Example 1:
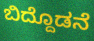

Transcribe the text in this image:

ಬಿದ್ದೊಡನೆ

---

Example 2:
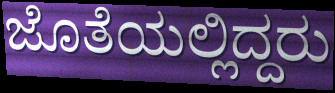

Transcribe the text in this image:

ಜೊತೆಯಲ್ಲಿದ್ದರು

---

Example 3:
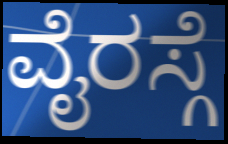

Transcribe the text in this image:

ವೈರಸ್ಗೆ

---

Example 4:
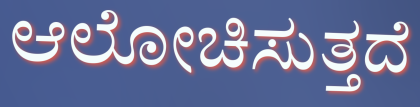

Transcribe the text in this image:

ಆಲೋಚಿಸುತ್ತದೆ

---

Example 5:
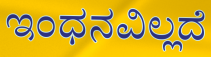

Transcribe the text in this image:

ಇಂಧನವಿಲ್ಲದೆ